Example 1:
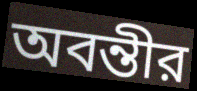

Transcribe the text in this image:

অবন্তীর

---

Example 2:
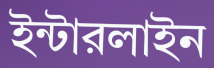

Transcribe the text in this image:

ইন্টারলাইন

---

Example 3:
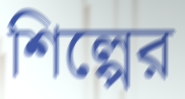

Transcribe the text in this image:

শিল্পের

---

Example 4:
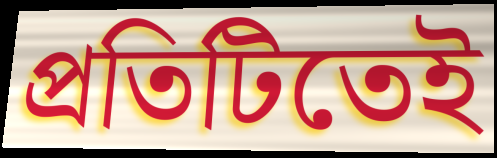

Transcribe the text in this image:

প্রতিটিতেই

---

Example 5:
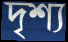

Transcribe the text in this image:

দৃশ্য